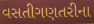
વસતીગણતરીના